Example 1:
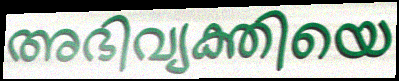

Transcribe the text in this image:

അഭിവ്യക്തിയെ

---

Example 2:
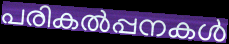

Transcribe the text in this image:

പരികൽപ്പനകൾ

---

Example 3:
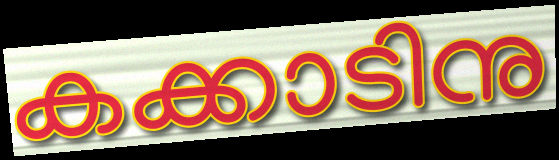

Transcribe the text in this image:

കക്കാടിനു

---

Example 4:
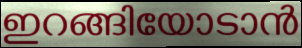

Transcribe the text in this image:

ഇറങ്ങിയോടാൻ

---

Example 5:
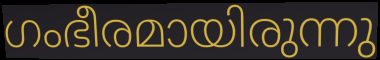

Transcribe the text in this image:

ഗംഭീരമായിരുന്നു